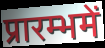
प्रारम्भमें